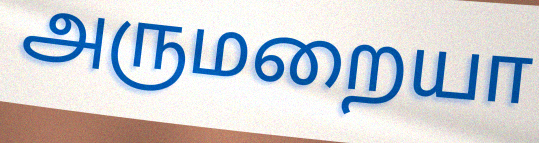
அருமறையா